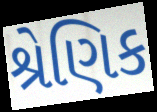
શ્રેણિક